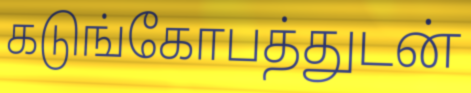
கடுங்கோபத்துடன்